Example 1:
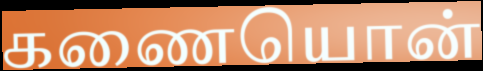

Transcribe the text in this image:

கணையொன்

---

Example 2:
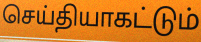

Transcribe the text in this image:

செய்தியாகட்டும்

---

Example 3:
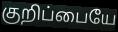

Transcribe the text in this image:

குறிப்பையே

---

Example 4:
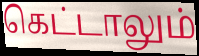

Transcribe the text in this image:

கெட்டாலும்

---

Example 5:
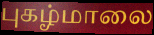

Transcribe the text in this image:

புகழ்மாலை